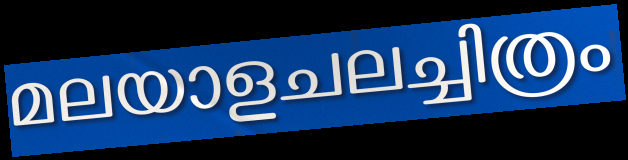
മലയാളചലച്ചിത്രം